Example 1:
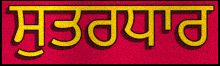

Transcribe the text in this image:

ਸੁਤਰਧਾਰ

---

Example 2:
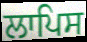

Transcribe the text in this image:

ਲਾਪਿਸ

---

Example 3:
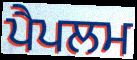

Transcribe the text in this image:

ਪੈਪਲਮ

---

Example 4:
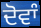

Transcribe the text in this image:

ਦੋਵਾੰ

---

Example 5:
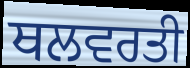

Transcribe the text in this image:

ਥਲਵਰਤੀ